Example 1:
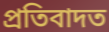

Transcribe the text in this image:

প্ৰতিবাদত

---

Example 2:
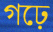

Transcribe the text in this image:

গঢ়ে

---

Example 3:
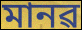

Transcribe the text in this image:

মানৱ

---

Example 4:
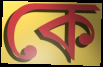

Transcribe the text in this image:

কে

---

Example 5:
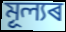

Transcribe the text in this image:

মূল্যৰ